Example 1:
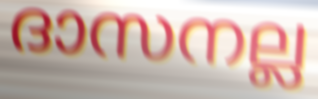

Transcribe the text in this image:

ദാസനല്ല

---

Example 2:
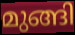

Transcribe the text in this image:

മുങ്ങി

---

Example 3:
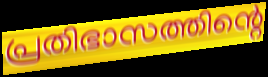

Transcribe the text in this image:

പ്രതിഭാസത്തിന്റെ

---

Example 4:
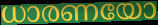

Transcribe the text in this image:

ധാരണയോ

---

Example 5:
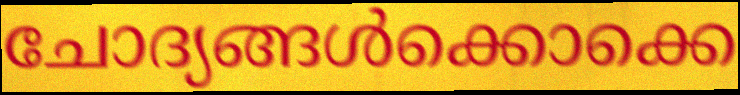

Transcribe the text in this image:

ചോദ്യങ്ങൾക്കൊക്കെ